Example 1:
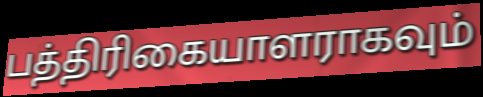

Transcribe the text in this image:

பத்திரிகையாளராகவும்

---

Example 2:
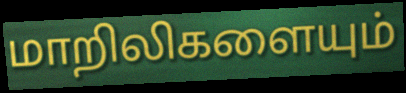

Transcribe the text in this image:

மாறிலிகளையும்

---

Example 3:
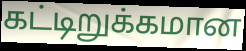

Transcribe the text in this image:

கட்டிறுக்கமான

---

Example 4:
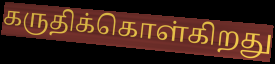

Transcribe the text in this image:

கருதிக்கொள்கிறது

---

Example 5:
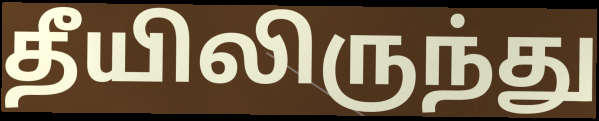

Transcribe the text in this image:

தீயிலிருந்து